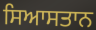
ਸਿਆਸਤਾਨ